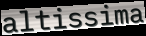
altissima